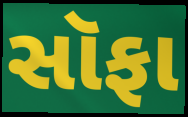
સૉફા